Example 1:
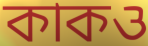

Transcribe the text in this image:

কাকও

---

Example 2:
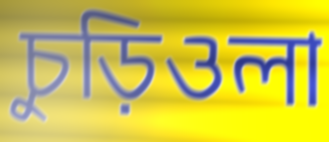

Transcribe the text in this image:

চুড়িওলা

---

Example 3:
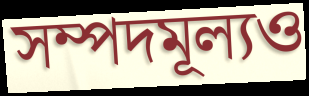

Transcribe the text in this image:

সম্পদমূল্যও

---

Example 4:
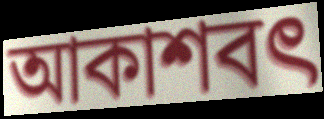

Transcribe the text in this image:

আকাশবৎ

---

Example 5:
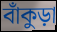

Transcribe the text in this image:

বাঁকুড়া